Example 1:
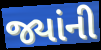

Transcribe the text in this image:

જ્યાંની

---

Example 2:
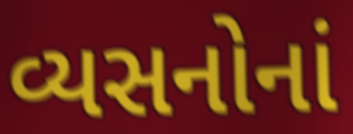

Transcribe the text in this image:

વ્યસનોનાં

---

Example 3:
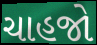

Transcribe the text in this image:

ચાહજો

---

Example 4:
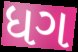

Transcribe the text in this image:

ધગ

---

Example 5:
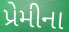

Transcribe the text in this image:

પ્રેમીના